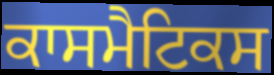
ਕਾਸਮੈਟਿਕਸ